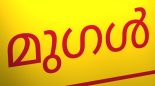
മുഗൾ